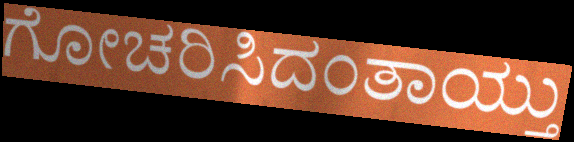
ಗೋಚರಿಸಿದಂತಾಯ್ತು